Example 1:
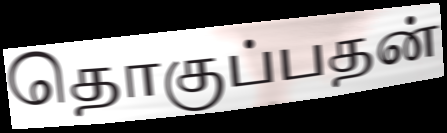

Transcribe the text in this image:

தொகுப்பதன்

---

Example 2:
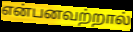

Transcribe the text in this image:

என்பனவற்றால்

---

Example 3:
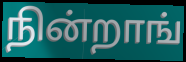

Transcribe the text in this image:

நின்றாங்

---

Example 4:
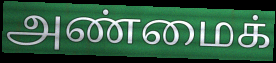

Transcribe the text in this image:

அண்மைக்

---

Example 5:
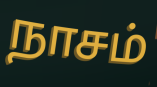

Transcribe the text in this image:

நாசம்